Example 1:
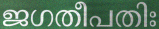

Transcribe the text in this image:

ജഗതീപതിഃ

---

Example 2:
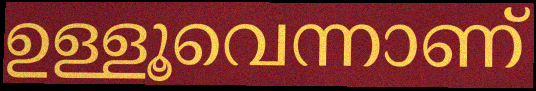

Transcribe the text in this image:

ഉള്ളൂവെന്നാണ്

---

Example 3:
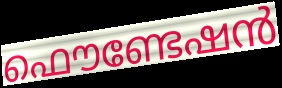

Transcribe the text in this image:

ഫൌണ്ടേഷൻ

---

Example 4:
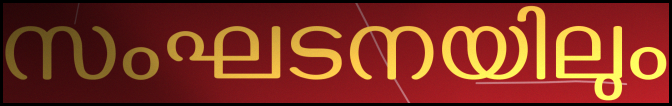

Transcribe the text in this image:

സംഘടനയിലും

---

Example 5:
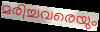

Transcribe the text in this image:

മരിച്ചവരെയും